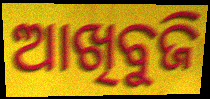
ଆଖିବୁଜି